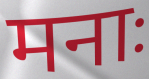
मनाः